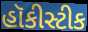
હૉકીસ્ટીક